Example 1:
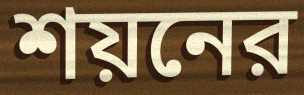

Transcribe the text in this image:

শয়নের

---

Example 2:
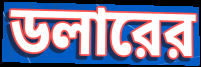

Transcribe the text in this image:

ডলারের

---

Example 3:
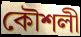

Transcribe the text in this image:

কৌশলী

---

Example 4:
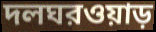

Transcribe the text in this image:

দলঘরওয়াড়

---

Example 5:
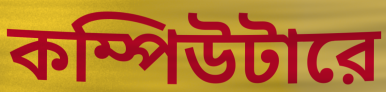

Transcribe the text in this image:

কম্পিউটারে